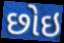
છોઇ